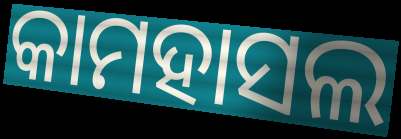
କାମହାସଲ